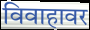
विवाहावर